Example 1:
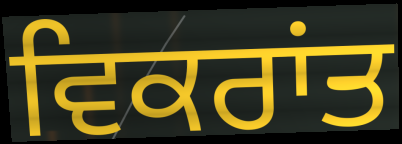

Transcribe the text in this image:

ਵਿਕਰਾਂਤ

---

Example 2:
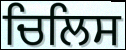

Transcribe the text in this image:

ਚਿਲਿਸ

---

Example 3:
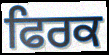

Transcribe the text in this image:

ਫਿਰਕ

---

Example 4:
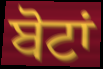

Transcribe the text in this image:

ਬੋਟਾਂ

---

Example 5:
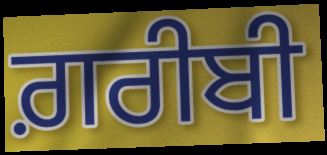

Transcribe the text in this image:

ਗ਼ਰੀਬੀ